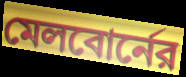
মেলবোর্নের